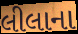
લીલાના